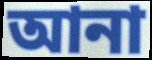
আনা